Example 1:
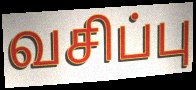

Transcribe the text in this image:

வசிப்பு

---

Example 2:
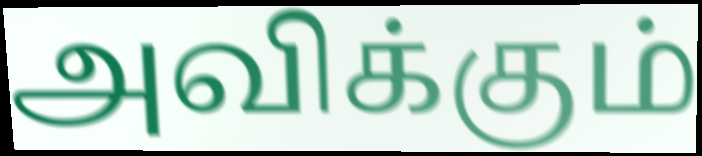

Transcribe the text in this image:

அவிக்கும்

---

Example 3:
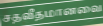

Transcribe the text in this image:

சதவீதமானவை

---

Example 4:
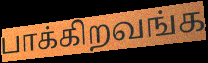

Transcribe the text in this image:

பாக்கிறவங்க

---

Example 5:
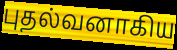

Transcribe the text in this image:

புதல்வனாகிய